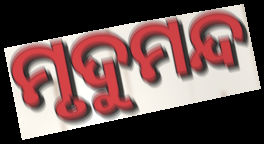
ମୃଦୁମନ୍ଦ